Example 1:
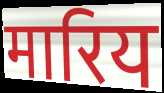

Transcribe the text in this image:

मारिय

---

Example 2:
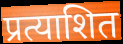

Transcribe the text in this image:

प्रत्याशित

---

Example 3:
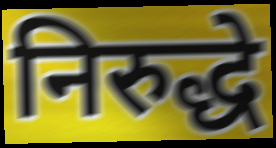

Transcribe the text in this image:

निरुद्धे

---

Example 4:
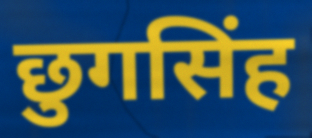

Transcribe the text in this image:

छुगसिंह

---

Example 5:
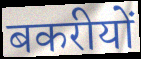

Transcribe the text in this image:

बकरीयों